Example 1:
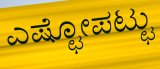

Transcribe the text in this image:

ಎಷ್ಟೋಪಟ್ಟು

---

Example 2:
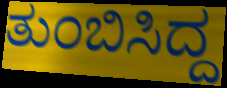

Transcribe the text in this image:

ತುಂಬಿಸಿದ್ದ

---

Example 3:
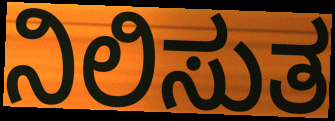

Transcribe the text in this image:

ನಿಲಿಸುತ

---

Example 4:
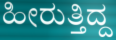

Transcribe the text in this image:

ಹೀರುತ್ತಿದ್ದ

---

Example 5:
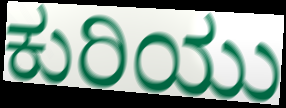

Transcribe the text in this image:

ಕುರಿಯು